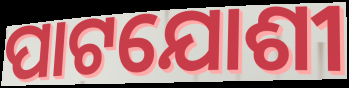
ପାଟଯୋଶୀ